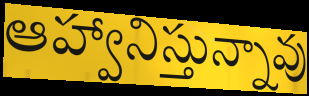
ఆహ్వానిస్తున్నావు